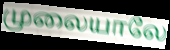
முலையாலே